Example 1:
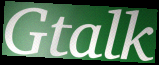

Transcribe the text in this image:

Gtalk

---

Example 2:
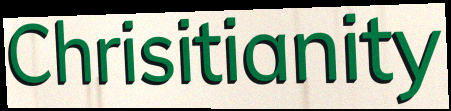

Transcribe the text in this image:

Chrisitianity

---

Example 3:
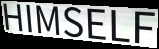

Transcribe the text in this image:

HIMSELF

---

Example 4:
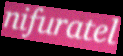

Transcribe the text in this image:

nifuratel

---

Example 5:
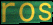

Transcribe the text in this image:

ros